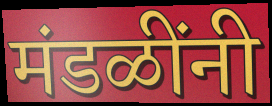
मंडळींनी